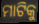
ମାଟିକୁ